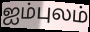
ஐம்புலம்